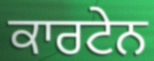
ਕਾਰਟੇਨ